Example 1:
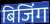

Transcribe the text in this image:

बिजिंग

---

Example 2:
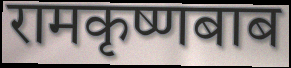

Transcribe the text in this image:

रामकृष्णबाब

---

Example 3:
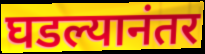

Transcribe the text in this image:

घडल्यानंतर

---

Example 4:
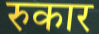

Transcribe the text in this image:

रुकार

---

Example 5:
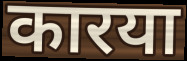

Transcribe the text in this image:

कारया